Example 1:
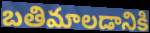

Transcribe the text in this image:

బతిమాలడానికి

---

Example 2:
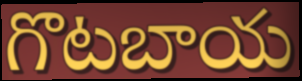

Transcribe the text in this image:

గొటబాయ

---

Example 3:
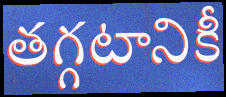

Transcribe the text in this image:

తగ్గటానికీ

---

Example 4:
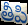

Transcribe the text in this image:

తీపి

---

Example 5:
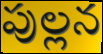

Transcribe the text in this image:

పుల్లన